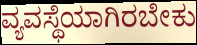
ವ್ಯವಸ್ಥೆಯಾಗಿರಬೇಕು